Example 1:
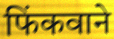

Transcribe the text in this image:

फिंकवाने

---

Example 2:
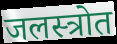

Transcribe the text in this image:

जलस्त्रोत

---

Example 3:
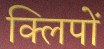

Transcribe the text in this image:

क्लिपों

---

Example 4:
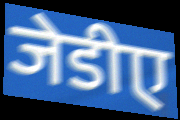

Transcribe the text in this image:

जेडीए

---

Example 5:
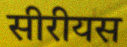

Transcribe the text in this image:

सीरीयस